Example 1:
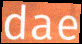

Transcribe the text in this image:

dae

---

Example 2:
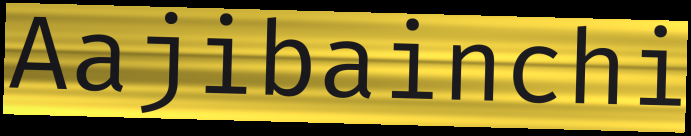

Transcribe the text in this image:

Aajibainchi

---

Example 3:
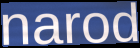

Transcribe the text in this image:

narod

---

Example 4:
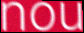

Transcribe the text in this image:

nou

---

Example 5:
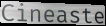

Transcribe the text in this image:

Cineaste